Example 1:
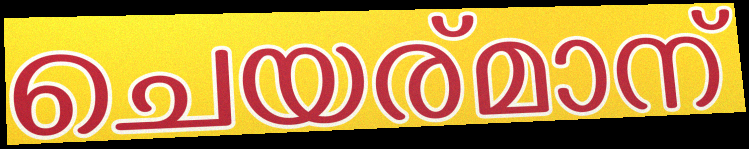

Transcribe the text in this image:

ചെയര്മാന്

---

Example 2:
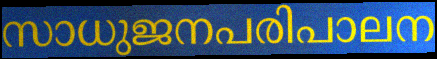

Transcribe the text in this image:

സാധുജനപരിപാലന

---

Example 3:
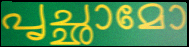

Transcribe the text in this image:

പൃച്ഛാമോ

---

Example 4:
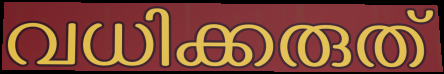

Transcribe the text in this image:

വധിക്കരുത്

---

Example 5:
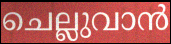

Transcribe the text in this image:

ചെല്ലുവാൻ